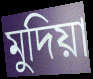
মুদিয়া